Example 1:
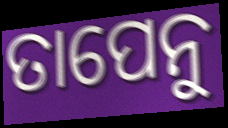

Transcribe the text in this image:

ତାପେନୁ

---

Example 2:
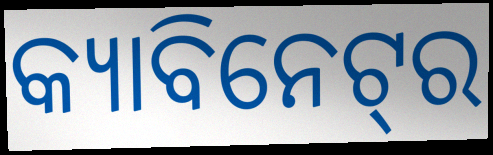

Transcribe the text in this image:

କ୍ୟାବିନେଟ୍‌ର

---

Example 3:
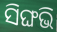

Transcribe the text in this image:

ସିଙ୍ଘଭି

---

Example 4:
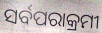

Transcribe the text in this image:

ସର୍ବପରାକ୍ରମୀ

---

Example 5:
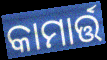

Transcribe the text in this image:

କାମାର୍ତ୍ତ